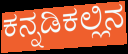
ಕನ್ನಡಿಕಲ್ಲಿನ